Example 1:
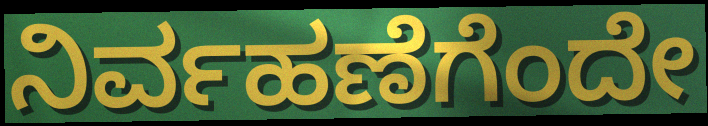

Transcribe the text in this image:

ನಿರ್ವಹಣೆಗೆಂದೇ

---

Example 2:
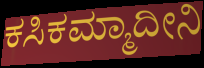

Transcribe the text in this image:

ಕಸಿಕಮ್ಮಾದೀನಿ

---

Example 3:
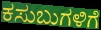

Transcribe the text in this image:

ಕಸುಬುಗಳಿಗೆ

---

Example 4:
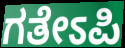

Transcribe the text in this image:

ಗತೇಽಪಿ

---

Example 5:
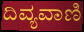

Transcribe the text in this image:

ದಿವ್ಯವಾಣಿ